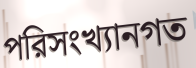
পরিসংখ্যানগত